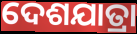
ଦେଶଯାତ୍ରା